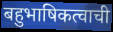
बहुभाषिकत्वाची